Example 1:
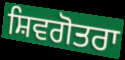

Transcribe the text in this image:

ਸ਼ਿਵਗੋਤਰਾ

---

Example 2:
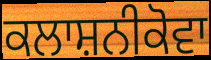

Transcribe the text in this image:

ਕਲਾਸ਼ਨੀਕੋਵਾ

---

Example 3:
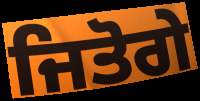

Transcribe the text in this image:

ਜਿਤੋਗੇ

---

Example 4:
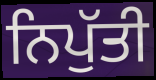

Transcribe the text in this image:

ਨਿਪੁੱਤੀ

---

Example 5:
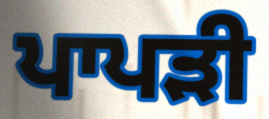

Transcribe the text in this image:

ਪਾਪੜੀ